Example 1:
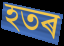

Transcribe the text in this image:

হতৰ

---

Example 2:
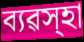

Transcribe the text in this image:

ব্যৱস্হা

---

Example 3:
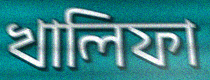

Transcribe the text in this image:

খালিফা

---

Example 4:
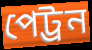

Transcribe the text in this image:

পেট্ৰন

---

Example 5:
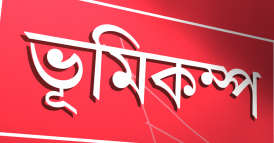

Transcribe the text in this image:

ভূমিকম্প